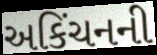
અકિંચનની